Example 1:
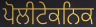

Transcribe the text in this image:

ਪੋਲੀਟੇਕਨਿਕ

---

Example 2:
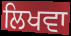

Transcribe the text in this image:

ਲਿਖਵਾ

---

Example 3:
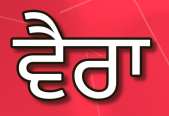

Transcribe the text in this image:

ਵੈਰਾ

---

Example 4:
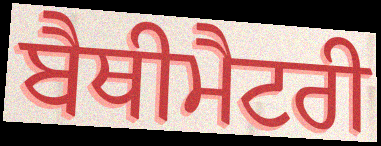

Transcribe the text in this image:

ਬੈਥੀਮੈਟਰੀ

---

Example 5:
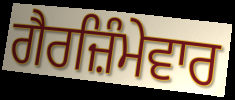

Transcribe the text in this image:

ਗੈਰਜ਼ਿੰਮੇਵਾਰ